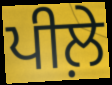
ਪੀਲ਼ੇ